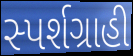
સ્પર્શગ્રાહી